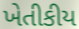
ખેતીકીય